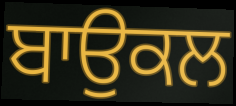
ਬਾਉਕਲ